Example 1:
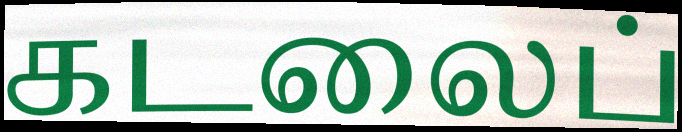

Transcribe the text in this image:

கடலைப்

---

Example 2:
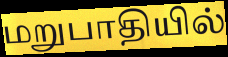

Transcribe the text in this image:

மறுபாதியில்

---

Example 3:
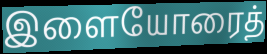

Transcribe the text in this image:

இளையோரைத்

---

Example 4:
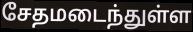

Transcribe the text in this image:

சேதமடைந்துள்ள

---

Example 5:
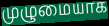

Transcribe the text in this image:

முழுமையாக